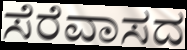
ಸೆರೆವಾಸದ